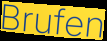
Brufen